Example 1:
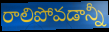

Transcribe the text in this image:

రాలిపోవడాన్నీ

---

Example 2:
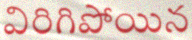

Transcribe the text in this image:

విరిగిపోయిన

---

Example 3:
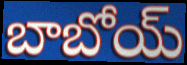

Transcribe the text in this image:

బాబోయ్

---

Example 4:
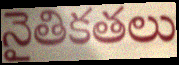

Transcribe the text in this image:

నైతికతలు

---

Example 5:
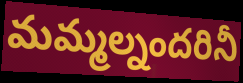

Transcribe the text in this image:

మమ్మల్నందరినీ